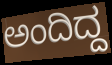
ಅಂದಿದ್ದ